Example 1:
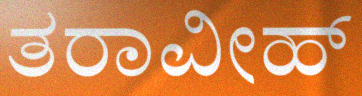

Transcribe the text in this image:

ತರಾವೀಹ್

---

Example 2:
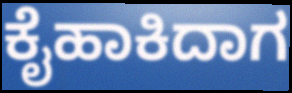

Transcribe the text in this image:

ಕೈಹಾಕಿದಾಗ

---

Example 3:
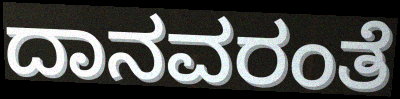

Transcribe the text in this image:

ದಾನವರಂತೆ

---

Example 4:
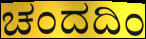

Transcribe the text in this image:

ಚಂದದಿಂ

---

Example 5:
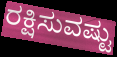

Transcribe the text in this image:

ರಕ್ಷಿಸುವಷ್ಟು